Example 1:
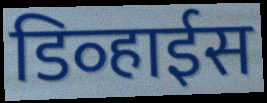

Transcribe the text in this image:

डिव्हाईस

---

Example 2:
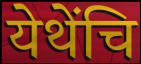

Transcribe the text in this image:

येथेंचि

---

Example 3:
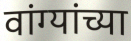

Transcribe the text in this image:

वांग्यांच्या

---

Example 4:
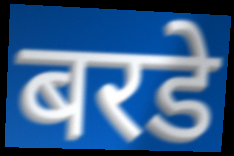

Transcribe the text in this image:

बरडे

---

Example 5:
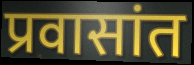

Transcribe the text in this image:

प्रवासांत